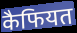
कैफियत